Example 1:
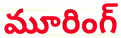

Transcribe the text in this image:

మూరింగ్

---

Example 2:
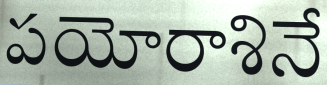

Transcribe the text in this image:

పయోరాశినే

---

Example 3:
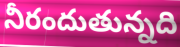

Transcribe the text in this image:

నీరందుతున్నది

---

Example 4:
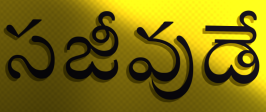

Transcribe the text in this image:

సజీవుడే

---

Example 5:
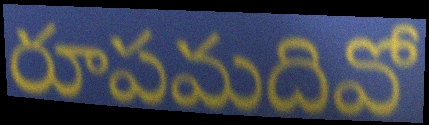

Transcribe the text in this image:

రూపమదివో